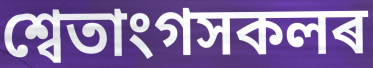
শ্বেতাংগসকলৰ